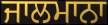
ਜਾਲਮਾਨਾ